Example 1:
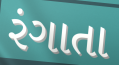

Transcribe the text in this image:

રંગાતા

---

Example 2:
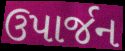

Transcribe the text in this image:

ઉપાર્જન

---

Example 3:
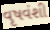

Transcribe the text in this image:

વૃષવંશી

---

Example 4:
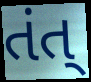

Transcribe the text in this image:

તંત્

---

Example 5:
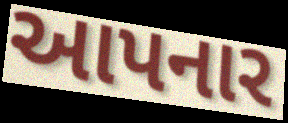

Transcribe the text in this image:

આપનાર